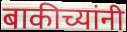
बाकीच्यांनी